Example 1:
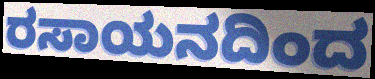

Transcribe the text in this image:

ರಸಾಯನದಿಂದ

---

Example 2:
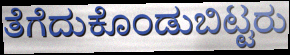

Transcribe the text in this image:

ತೆಗೆದುಕೊಂಡುಬಿಟ್ಟರು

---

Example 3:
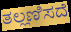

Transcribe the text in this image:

ತಲ್ಲಣಿಸದೆ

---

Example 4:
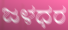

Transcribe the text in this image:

ಜಳಧರ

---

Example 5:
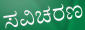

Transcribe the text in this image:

ಸವಿಚರಣ